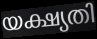
യക്ഷ്യതി